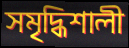
সমৃদ্ধিশালী